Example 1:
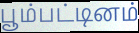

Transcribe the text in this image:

பூம்பட்டினம்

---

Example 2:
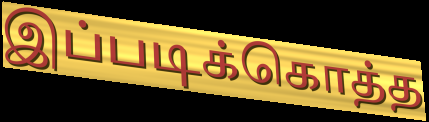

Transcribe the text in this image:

இப்படிக்கொத்த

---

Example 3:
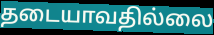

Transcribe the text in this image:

தடையாவதில்லை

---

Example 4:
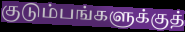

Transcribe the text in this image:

குடும்பங்களுக்குத்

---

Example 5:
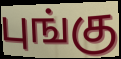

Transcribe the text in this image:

புங்கு